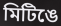
মিটিঙে